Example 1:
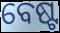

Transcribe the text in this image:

ବେଷ୍ଟ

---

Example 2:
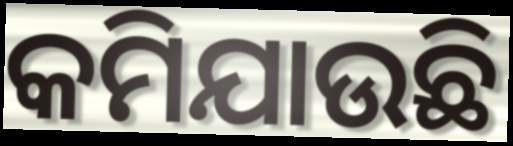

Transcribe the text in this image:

କମିଯାଉଛି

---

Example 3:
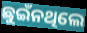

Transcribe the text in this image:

ଛୁଇଁନଥିଲେ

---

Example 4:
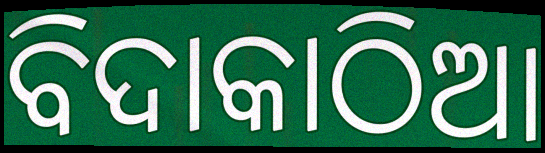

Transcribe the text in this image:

ବିଦାକାଠିଆ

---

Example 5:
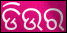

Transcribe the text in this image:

ଡିଉର